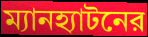
ম্যানহ্যাটনের